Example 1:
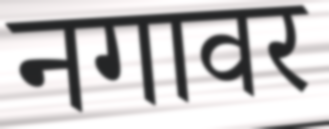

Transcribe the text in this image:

नगावर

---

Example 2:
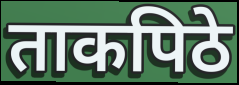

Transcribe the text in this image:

ताकपिठे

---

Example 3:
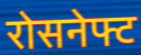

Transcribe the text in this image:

रोसनेफ्ट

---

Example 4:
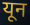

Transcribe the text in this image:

यून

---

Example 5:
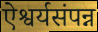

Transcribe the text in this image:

ऐश्वर्यसंपन्न